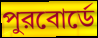
পুরবোর্ডে